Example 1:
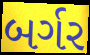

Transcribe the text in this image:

બર્ગર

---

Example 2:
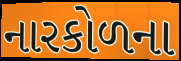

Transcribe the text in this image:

નારકોળના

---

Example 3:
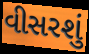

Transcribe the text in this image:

વીસરશું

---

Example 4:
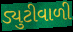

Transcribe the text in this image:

ડ્યુટીવાળી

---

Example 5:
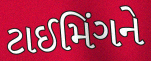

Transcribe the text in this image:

ટાઈમિંગને